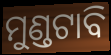
ମୁଣ୍ଡଟାବି